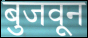
बुजवून